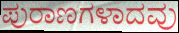
ಪುರಾಣಗಳಾದವು